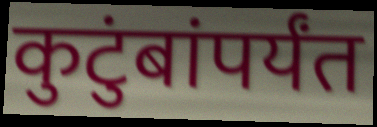
कुटुंबांपर्यंत